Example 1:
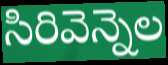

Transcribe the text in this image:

సిరివెన్నెల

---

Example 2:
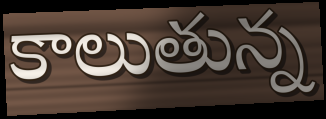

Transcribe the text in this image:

కాలుతున్న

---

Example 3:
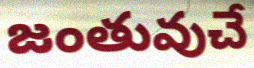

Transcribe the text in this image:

జంతువుచే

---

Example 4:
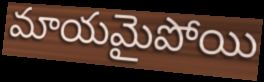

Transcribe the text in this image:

మాయమైపోయి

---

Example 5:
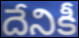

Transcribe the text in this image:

దేనికీ